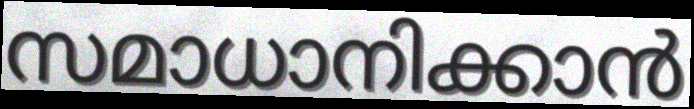
സമാധാനിക്കാൻ